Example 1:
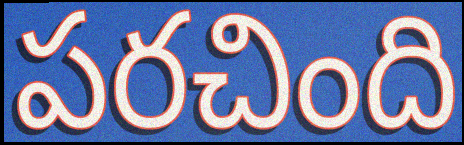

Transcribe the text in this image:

పరచింది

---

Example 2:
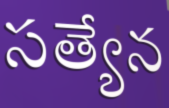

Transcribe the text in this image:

సత్యేన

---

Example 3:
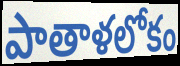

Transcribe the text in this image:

పాతాళలోకం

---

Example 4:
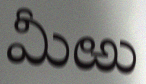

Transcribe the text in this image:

మీఱు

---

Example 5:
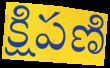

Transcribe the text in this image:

క్షిపణి